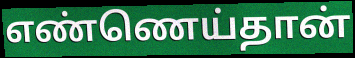
எண்ணெய்தான்